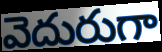
వెదురుగా